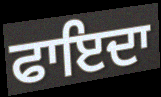
ਫਾਇਦਾ